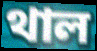
থাল